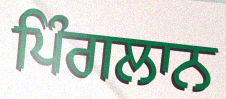
ਪਿੰਗਲਾਨ